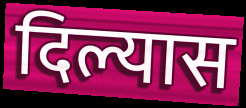
दिल्यास